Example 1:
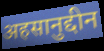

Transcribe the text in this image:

अहसानुद्दीन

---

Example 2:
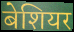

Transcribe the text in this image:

बेशियर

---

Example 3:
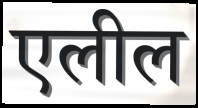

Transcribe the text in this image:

एलील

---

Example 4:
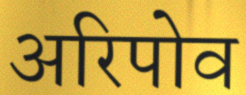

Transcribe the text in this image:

अरिपोव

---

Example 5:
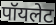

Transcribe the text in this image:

पॉयलेट